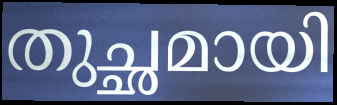
തുച്ഛമായി